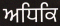
ਅਧਿਕਿ